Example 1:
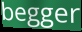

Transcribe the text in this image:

begger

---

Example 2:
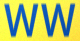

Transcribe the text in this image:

ww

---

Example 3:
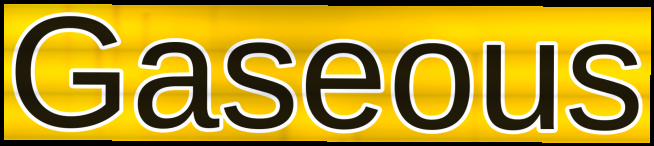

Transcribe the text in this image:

Gaseous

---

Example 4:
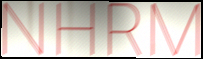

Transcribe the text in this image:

NHRM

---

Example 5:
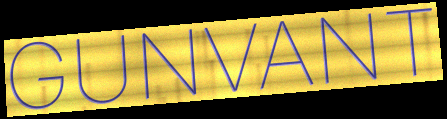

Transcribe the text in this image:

GUNVANT